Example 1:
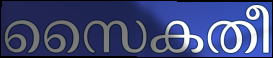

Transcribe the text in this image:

സൈകതീ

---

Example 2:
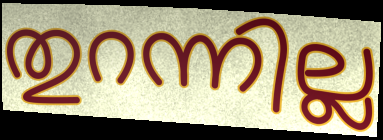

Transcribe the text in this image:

തുറന്നില്ല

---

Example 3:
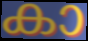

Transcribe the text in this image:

കാ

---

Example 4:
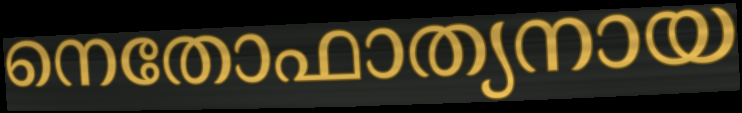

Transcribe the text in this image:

നെതോഫാത്യനായ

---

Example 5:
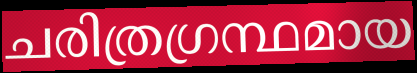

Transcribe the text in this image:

ചരിത്രഗ്രന്ഥമായ